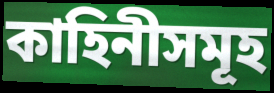
কাহিনীসমূহ